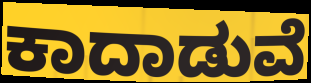
ಕಾದಾಡುವೆ